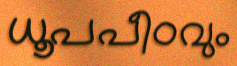
ധൂപപീഠവും